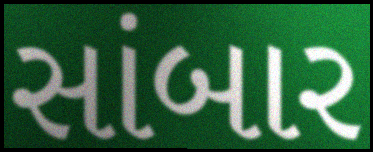
સાંબાર